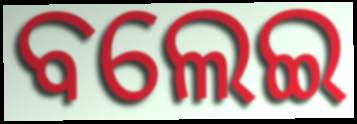
ବଲେଇ